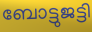
ബോട്ടുജട്ടി